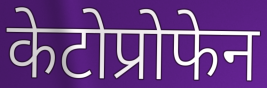
केटोप्रोफेन